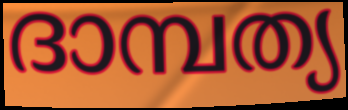
ദാമ്പത്യ